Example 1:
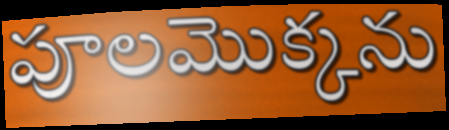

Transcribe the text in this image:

పూలమొక్కను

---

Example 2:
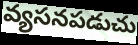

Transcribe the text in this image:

వ్యసనపడుచు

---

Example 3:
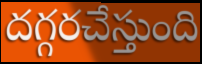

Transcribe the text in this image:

దగ్గరచేస్తుంది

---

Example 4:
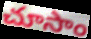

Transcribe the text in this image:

చూసాం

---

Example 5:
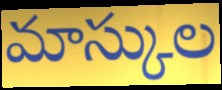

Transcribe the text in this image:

మాస్కుల